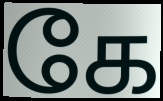
கே